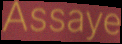
Assaye